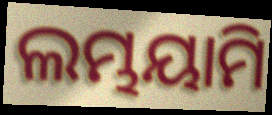
ଲମ୍ଭୟାମି